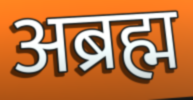
अब्रह्म